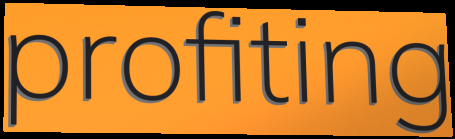
profiting